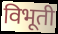
विभूती